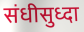
संधीसुध्दा